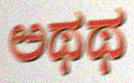
ಅಥಥ